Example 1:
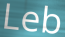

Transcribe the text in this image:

Leb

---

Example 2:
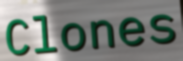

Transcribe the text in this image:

Clones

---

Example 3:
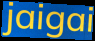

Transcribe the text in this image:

jaigai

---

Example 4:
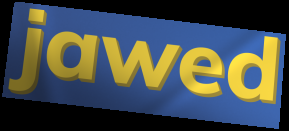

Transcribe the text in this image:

jawed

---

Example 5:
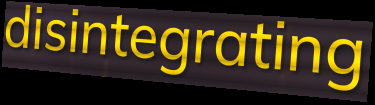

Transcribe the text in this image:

disintegrating